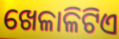
ଖେଳାଳିଟିଏ